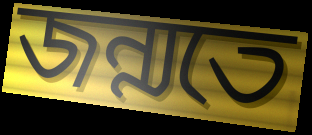
জন্মতে